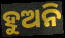
ହୁଅନି